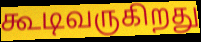
கூடிவருகிறது